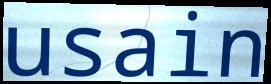
usain